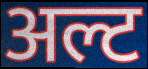
अल्ट